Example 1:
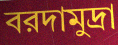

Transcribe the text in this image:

বরদামুদ্রা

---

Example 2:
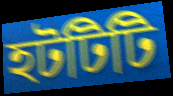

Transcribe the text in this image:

হটটিটি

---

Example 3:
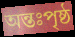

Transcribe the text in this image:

অন্তঃপৃষ্ঠ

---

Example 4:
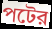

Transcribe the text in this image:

পটের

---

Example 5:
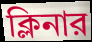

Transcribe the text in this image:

ক্লিনার